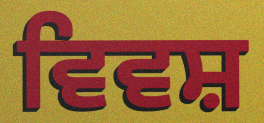
ਵਿਵਸ਼